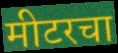
मीटरचा